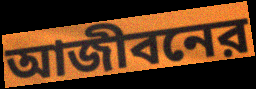
আজীবনের